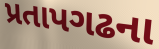
પ્રતાપગઢના